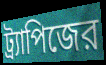
ট্র্যাপিজের